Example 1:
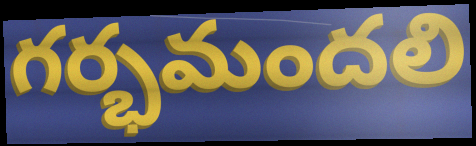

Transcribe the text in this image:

గర్భమందలి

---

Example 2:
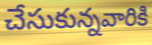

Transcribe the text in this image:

చేసుకున్నవారికి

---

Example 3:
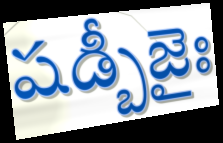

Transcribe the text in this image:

షడ్బీజైః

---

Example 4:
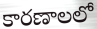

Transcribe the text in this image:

కారణాలలో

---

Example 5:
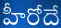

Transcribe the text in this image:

హీరోదే